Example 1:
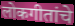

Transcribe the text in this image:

लोकगीतांचे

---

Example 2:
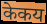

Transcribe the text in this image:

केकय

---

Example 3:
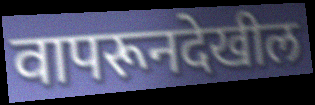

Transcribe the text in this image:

वापरूनदेखील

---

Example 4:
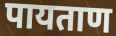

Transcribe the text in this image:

पायताण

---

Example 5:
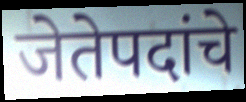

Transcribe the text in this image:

जेतेपदांचे